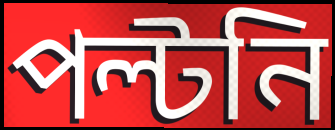
পল্টনি